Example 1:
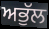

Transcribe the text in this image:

ਅਭੁੱਲ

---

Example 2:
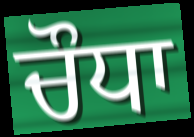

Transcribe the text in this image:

ਚੌਧਾ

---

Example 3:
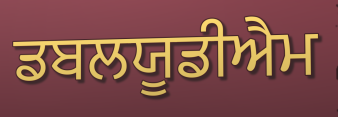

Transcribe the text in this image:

ਡਬਲਯੂਡੀਐਮ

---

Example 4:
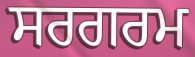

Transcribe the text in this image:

ਸਰਗਰਮ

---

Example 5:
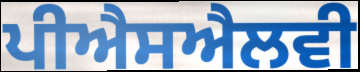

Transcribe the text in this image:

ਪੀਐਸਐਲਵੀ